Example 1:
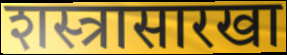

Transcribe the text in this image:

शस्त्रासारखा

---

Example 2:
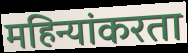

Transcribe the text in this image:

महिन्यांकरता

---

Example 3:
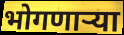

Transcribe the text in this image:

भोगणाऱ्या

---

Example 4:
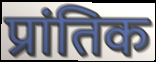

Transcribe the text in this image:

प्रांतिक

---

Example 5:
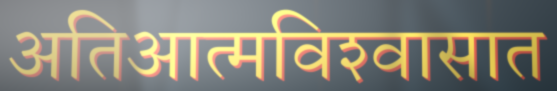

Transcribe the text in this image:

अतिआत्मविश्वासात